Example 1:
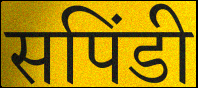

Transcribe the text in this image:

सपिंडी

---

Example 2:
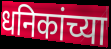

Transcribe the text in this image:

धनिकांच्या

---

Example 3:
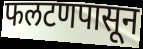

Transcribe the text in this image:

फलटणपासून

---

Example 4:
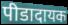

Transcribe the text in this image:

पीडादायक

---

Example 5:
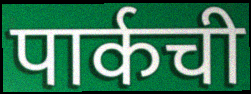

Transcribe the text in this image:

पार्कची